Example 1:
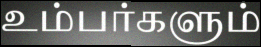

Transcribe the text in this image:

உம்பர்களும்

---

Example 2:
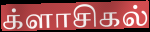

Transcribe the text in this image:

க்ளாசிகல்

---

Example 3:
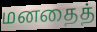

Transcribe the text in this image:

மனதைத்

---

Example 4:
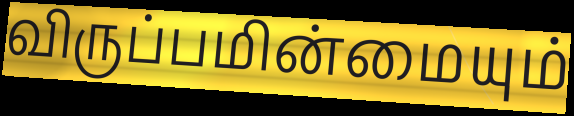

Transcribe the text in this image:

விருப்பமின்மையும்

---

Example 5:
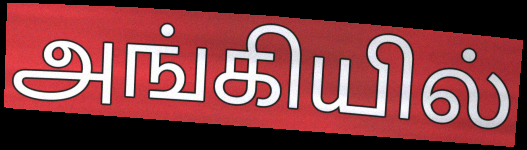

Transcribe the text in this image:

அங்கியில்